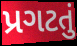
પ્રગટતું